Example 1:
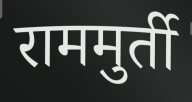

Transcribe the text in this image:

राममुर्ती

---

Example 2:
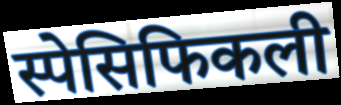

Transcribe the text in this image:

स्पेसिफिकली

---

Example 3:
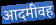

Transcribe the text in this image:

आदमीवह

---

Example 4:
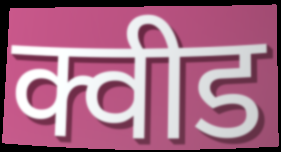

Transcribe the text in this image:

क्वीड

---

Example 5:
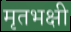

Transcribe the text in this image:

मृतभक्षी